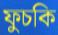
ফুচকি